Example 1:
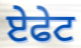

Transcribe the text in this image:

ਏਫੇਟ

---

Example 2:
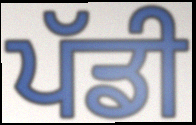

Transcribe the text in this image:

ਪੱਡੀ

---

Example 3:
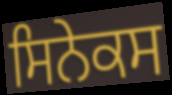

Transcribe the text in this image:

ਸਿਨੇਕਸ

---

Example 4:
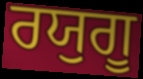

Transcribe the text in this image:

ਰਯੁਗੂ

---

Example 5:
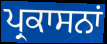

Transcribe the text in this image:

ਪ੍ਰਕਾਸਨਾਂ